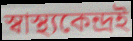
স্বাস্থ্যকেন্দ্ৰই